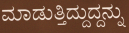
ಮಾಡುತ್ತಿದ್ದುದ್ದನ್ನು